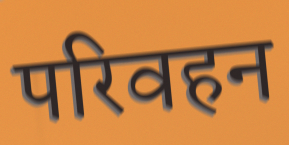
परिवहन